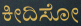
ಕೀದಿಸೋ